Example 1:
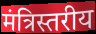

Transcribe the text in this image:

मंत्रिस्तरीय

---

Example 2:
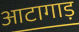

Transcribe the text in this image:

आटागाड़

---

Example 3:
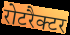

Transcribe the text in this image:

रोटरैक्टर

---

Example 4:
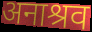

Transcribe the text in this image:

अनाश्रव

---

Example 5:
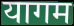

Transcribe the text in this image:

यागम